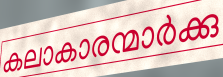
കലാകാരന്മാർക്കു